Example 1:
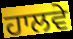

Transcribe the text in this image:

ਹਾਲਵੇ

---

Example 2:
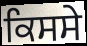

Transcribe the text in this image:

ਕਿਸਸੇ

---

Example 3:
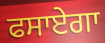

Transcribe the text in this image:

ਫਸਾਏਗਾ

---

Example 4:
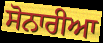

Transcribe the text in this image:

ਸੋਨਾਰੀਆ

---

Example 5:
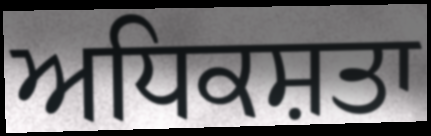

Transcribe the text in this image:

ਅਧਿਕਸ਼ਤਾ